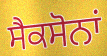
ਸੈਕਸੋਨਾਂ